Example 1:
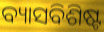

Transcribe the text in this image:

ବ୍ୟାସବିଶିଷ୍ଟ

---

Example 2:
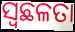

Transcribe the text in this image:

ସ୍ଵଛଳତା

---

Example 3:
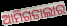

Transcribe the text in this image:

ଆମିଗଡାଲାର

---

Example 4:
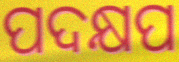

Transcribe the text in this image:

ପଦକ୍ଷପ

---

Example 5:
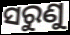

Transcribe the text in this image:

ସରୁଣୁ